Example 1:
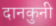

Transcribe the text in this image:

दानकुनी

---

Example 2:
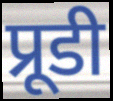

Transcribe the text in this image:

प्रूडी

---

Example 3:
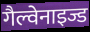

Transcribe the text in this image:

गैल्वेनाइज्ड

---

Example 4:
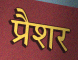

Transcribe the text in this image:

प्रैशर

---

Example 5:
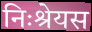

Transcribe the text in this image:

निःश्रेयस